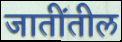
जातींतील